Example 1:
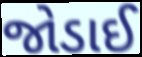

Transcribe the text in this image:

જોડાઈ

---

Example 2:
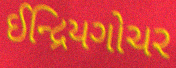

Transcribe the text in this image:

ઈન્દ્રિયગોચર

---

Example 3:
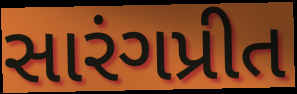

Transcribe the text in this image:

સારંગપ્રીત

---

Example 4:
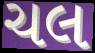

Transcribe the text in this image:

ચલ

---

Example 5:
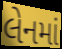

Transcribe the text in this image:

લેનમાં